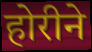
होरीने